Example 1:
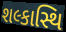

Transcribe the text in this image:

શલ્કાસ્થિ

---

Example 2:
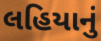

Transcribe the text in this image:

લહિયાનું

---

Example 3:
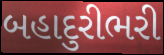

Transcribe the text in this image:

બહાદુરીભરી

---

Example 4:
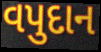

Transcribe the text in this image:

વપુદાન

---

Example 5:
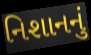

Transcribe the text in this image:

નિશાનનું